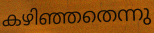
കഴിഞ്ഞതെന്നു